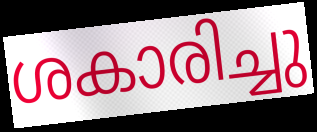
ശകാരിച്ചു